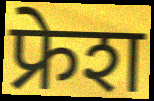
फ्रेश